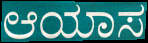
ಆಯಾಸ